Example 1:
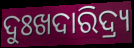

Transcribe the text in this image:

ଦୁଃଖଦାରିଦ୍ର୍ୟ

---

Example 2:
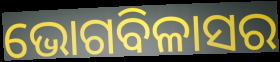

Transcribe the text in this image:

ଭୋଗବିଳାସର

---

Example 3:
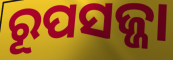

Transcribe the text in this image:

ରୂପସଜ୍ଜା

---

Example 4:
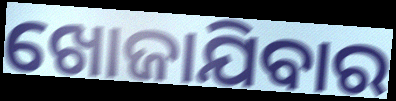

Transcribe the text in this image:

ଖୋଜାଯିବାର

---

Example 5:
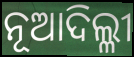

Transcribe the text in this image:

ନୂଆଦିଲ୍ଳୀ